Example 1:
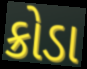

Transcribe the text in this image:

ક્રોડા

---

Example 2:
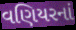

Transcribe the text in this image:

વણિયરનાં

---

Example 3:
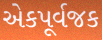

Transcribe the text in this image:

એકપૂર્વજક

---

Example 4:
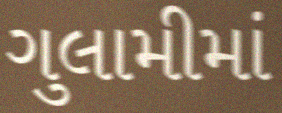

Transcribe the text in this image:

ગુલામીમાં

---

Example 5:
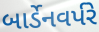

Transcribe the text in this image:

બાર્ડેનવર્પરે